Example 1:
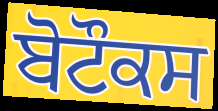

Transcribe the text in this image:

ਬੋਟੌਕਸ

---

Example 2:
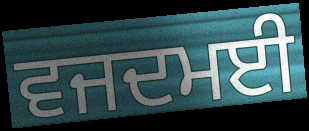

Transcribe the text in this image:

ਵਜਦਮਈ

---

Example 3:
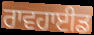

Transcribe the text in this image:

ਰਾਵਹਾਈਡ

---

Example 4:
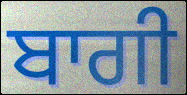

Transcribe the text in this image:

ਬਾਗੀ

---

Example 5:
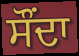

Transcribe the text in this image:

ਸੌਂਦਾ